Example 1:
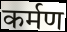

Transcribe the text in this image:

कर्मण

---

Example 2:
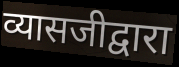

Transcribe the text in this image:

व्यासजीद्वारा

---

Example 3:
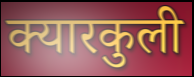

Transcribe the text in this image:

क्यारकुली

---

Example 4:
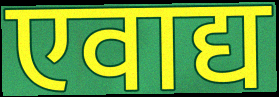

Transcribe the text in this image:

एवाद्य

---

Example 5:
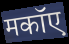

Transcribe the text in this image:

मकॉए